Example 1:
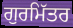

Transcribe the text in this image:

ਗੁਰਮਿੱਤਰ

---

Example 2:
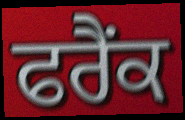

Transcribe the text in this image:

ਫਰੈਂਕ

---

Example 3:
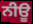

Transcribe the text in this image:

ਨੀਊ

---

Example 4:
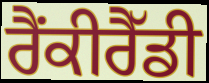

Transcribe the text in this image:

ਰੈਂਕੀਰੈੱਡੀ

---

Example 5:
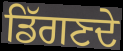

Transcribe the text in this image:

ਡਿੱਗਣਦੇ